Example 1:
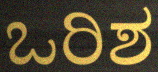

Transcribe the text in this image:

ಒರಿಶ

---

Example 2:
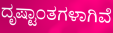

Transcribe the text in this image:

ದೃಷ್ಟಾಂತಗಳಾಗಿವೆ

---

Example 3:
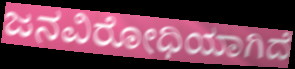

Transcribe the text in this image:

ಜನವಿರೋಧಿಯಾಗಿದೆ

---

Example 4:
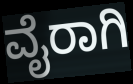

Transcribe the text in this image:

ವೈರಾಗಿ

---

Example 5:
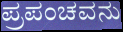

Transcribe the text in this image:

ಪ್ರಪಂಚವನು